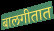
बालगीतात